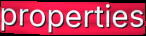
properties